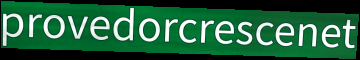
provedorcrescenet